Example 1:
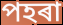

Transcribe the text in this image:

পহৰা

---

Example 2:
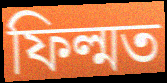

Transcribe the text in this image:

ফিল্মত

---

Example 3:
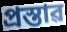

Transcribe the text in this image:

প্ৰস্তাৱ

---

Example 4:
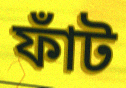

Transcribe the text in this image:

ফাঁট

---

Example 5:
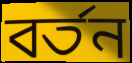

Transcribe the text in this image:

বৰ্তন